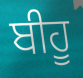
ਬੀਹੂ